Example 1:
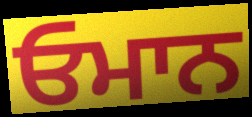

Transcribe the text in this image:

ਓਮਾਨ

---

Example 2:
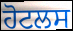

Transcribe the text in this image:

ਹੋਟਲਸ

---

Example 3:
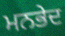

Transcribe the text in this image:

ਮਨਭੇਦ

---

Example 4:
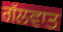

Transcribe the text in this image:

ਗੱਲਵਾਤ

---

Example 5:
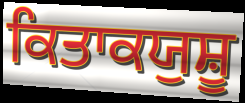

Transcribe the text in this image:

ਕਿਤਾਕਯੁਸ਼ੂ